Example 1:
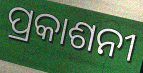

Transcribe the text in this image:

ପ୍ରକାଶନୀ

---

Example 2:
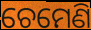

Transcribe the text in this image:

ଚେମେଣି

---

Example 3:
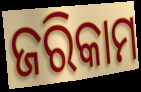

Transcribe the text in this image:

ଜରିକାମ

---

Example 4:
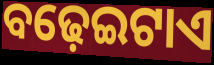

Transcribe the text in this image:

ବଢ଼େଇଟାଏ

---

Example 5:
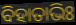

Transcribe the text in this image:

ବିହାତାଭିଃ